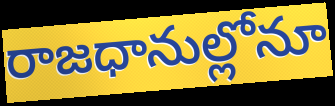
రాజధానుల్లోనూ